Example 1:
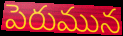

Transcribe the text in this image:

పెరుమున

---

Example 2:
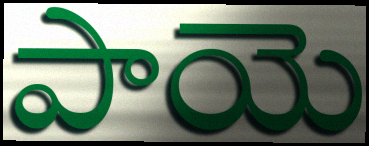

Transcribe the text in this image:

పాయె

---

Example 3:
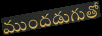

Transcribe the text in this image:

ముందడుగుతో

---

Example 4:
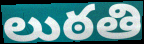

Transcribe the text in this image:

లుఠతి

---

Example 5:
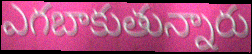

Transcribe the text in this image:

ఎగబాకుతున్నారు